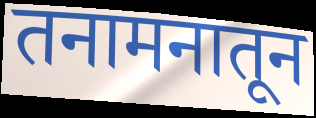
तनामनातून